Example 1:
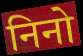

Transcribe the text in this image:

निनो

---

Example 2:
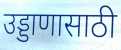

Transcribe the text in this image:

उड्डाणासाठी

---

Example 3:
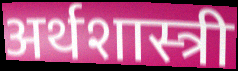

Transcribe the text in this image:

अर्थशास्त्री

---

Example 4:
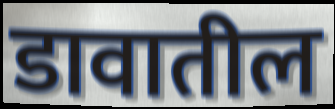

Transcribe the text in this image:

डावातील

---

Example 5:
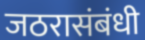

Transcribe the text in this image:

जठरासंबंधी